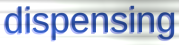
dispensing